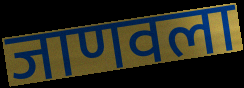
जाणवला